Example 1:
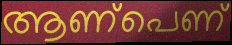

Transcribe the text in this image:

ആണ്പെണ്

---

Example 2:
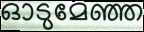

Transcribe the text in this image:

ഓടുമേഞ്ഞ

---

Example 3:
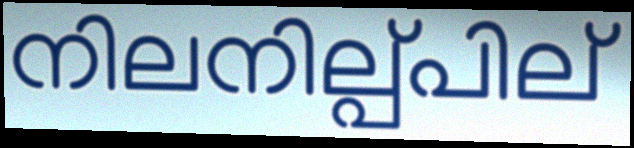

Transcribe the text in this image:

നിലനില്പ്പില്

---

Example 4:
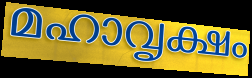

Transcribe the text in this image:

മഹാവൃക്ഷം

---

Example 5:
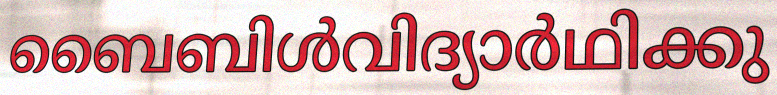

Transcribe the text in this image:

ബൈബിൾവിദ്യാർഥിക്കു